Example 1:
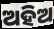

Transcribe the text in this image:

ଅହିଅ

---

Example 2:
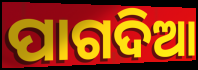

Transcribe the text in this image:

ପାଗଦିଆ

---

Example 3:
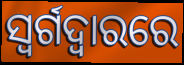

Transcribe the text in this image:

ସ୍ୱର୍ଗଦ୍ୱାରରେ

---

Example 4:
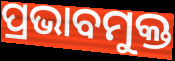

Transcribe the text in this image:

ପ୍ରଭାବମୁକ୍ତ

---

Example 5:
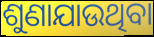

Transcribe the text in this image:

ଶୁଣାଯାଉଥିବା